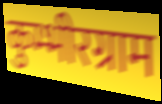
कुम्भीरग्राम